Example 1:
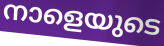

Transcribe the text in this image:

നാളെയുടെ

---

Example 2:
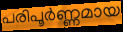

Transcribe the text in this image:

പരിപൂർണ്ണമായ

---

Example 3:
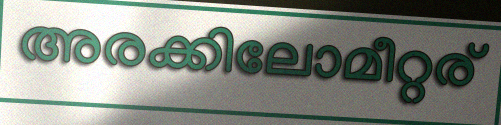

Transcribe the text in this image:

അരക്കിലോമീറ്റര്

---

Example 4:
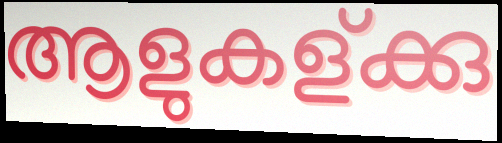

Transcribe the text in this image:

ആളുകള്ക്കു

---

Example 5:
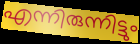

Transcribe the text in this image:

എന്നിരുന്നിട്ടും